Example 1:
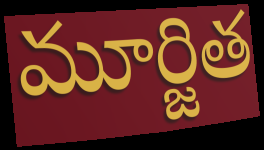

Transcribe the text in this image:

మూర్జిత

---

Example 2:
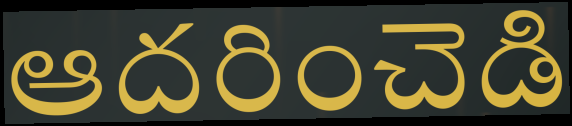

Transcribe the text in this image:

ఆదరించెడి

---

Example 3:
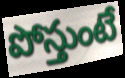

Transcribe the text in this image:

పోస్తుంటే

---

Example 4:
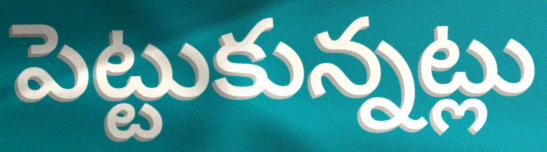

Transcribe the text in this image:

పెట్టుకున్నట్లు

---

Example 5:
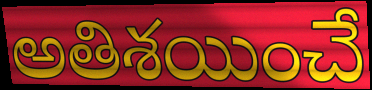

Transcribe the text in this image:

అతిశయించే